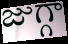
జుగ్గా